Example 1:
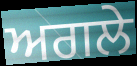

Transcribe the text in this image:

ਅਗਲੇ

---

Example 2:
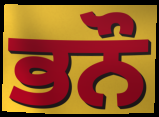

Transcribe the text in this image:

ਭਨੌ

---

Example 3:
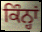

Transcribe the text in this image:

ਕਿੰਨ੍ਹਾਂ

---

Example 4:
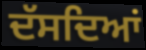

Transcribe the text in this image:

ਦੱਸਦਿਆਂ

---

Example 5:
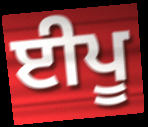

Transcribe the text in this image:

ਈਪੂ